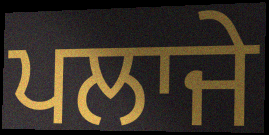
ਪਲਾਜੇ